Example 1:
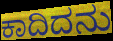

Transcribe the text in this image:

ಕಾದಿದನು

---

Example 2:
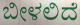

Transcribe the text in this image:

ಬೀಳಲಿದೆ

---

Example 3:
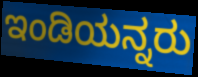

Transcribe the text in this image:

ಇಂಡಿಯನ್ನರು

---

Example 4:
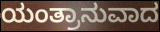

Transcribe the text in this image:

ಯಂತ್ರಾನುವಾದ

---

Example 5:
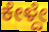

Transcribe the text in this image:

ಕೇಳ್ದೇ